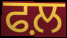
ਫਲ਼